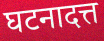
घटनादत्त